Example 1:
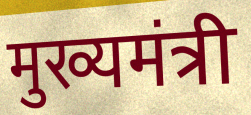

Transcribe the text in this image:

मुख्यमंत्री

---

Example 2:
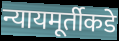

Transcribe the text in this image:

न्यायमूर्तीकडे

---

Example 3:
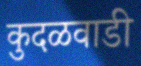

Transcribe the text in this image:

कुदळवाडी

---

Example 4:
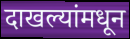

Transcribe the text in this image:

दाखल्यांमधून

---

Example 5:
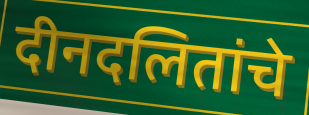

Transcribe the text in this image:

दीनदलितांचे